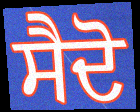
ਸੈਦੋ